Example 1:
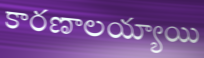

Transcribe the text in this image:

కారణాలయ్యాయి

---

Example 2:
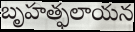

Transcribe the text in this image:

బృహత్ఫలాయన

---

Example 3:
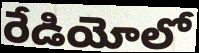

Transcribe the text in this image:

రేడియోలో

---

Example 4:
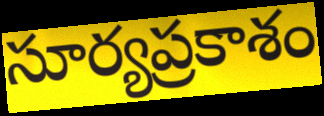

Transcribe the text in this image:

సూర్యప్రకాశం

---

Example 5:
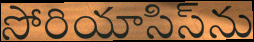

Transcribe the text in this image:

సోరియాసిస్‌ను